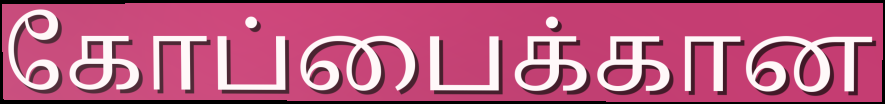
கோப்பைக்கான